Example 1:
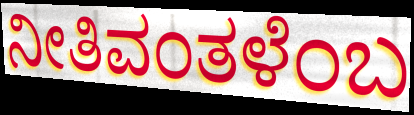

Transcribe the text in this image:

ನೀತಿವಂತಳೆಂಬ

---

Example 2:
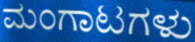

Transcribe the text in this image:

ಮಂಗಾಟಗಳು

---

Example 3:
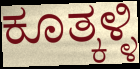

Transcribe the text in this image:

ಕೂತ್ಕಳ್ಳಿ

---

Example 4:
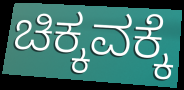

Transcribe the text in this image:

ಚಿಕ್ಕವಕ್ಕೆ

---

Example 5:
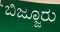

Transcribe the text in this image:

ಬಿಜ್ಜೂರು